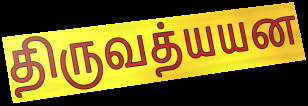
திருவத்யயன